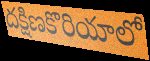
దక్షిణకొరియాలో